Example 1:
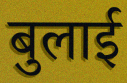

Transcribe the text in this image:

बुलाई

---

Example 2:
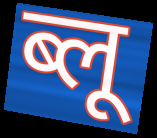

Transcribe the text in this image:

ब्लू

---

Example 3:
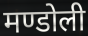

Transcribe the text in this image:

मण्डोली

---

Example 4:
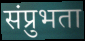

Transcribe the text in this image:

संप्रुभता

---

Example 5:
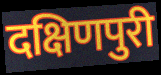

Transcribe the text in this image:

दक्षिणपुरी